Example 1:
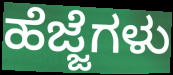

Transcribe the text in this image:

ಹೆಜ್ಜೆಗಳು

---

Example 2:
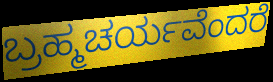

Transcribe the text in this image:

ಬ್ರಹ್ಮಚರ್ಯವೆಂದರೆ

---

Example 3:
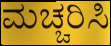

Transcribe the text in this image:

ಮಚ್ಚರಿಸಿ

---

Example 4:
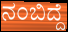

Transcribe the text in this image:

ನಂಬಿದ್ದೆ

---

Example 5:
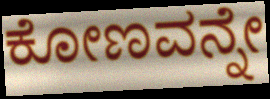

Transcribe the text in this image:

ಕೋಣವನ್ನೇ